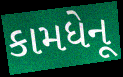
કામધેનૂ